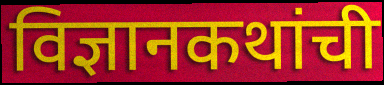
विज्ञानकथांची